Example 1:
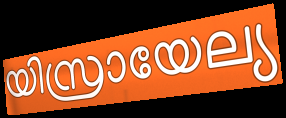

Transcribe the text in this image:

യിസ്രായേല്യ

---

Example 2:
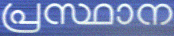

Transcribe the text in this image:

പ്രസ്ഥാന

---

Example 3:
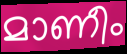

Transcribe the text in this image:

മാണീം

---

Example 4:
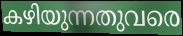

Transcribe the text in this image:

കഴിയുന്നതുവരെ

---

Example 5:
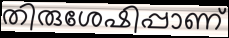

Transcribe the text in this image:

തിരുശേഷിപ്പാണ്